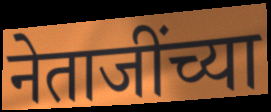
नेताजींच्या